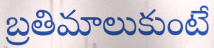
బ్రతిమాలుకుంటే